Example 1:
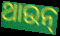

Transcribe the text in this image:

ଥାଉନ୍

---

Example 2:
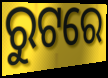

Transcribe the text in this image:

ରୁଟରେ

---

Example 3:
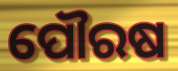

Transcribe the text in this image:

ପୌରଷ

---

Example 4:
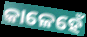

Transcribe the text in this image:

କାଳେହେଁ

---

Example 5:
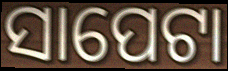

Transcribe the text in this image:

ସାପେଟା